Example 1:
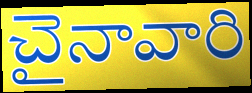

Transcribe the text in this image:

చైనావారి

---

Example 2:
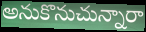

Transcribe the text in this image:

అనుకొనుచున్నారా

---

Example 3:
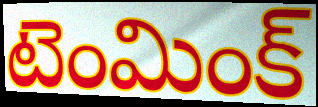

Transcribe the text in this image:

టెంమింక్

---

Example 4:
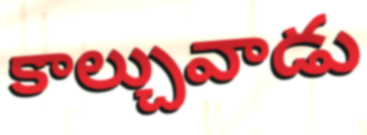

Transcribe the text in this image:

కాల్చువాడు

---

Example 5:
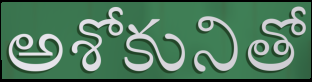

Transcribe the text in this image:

అశోకునితో